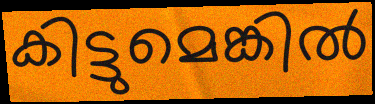
കിട്ടുമെങ്കിൽ